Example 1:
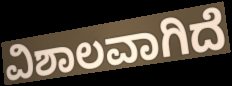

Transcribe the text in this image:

ವಿಶಾಲವಾಗಿದೆ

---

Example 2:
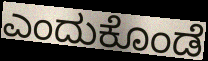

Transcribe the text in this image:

ಎಂದುಕೊಂಡೆ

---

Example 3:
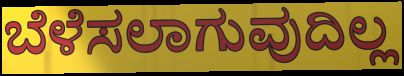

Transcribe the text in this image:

ಬೆಳೆಸಲಾಗುವುದಿಲ್ಲ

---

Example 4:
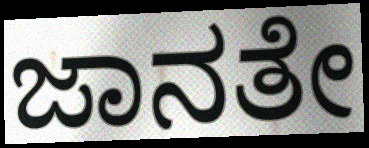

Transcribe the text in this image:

ಜಾನತೇ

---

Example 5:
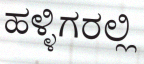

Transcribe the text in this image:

ಹಳ್ಳಿಗರಲ್ಲಿ